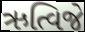
ઋત્વિજે